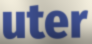
uter